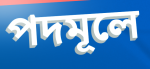
পদমূলে